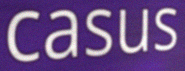
casus